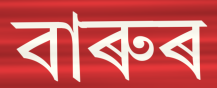
বাৰুৰ